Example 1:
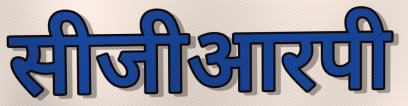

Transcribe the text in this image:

सीजीआरपी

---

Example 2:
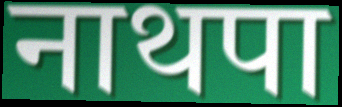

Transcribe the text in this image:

नाथपा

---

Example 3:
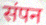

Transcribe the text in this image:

संपन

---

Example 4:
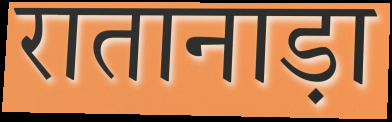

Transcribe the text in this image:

रातानाड़ा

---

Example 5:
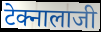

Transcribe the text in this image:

टेक्नालाजी